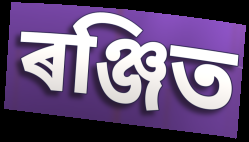
ৰঞ্জিত